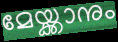
മേയ്ക്കാനും